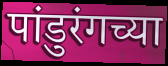
पांडुरंगच्या